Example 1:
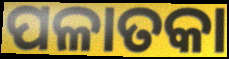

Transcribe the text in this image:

ପଳାତକା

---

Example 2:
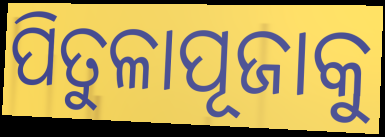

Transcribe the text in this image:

ପିତୁଳାପୂଜାକୁ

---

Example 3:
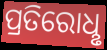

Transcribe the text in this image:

ପ୍ରତିରୋଧୢ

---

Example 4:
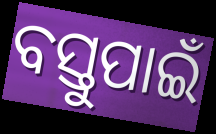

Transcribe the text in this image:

ବସ୍ତୁପାଇଁ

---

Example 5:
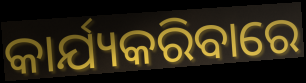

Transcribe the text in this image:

କାର୍ଯ୍ୟକରିବାରେ